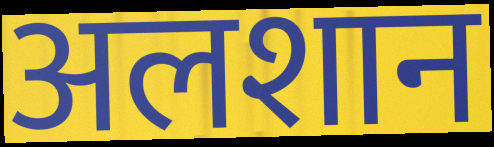
अलशान